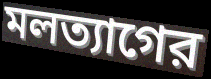
মলত্যাগের